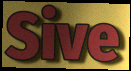
Sive